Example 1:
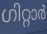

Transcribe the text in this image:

ഗിറ്റാർ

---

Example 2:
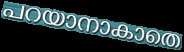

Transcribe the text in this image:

പറയാനാകാതെ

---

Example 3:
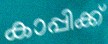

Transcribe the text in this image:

കാപ്പിക്ക്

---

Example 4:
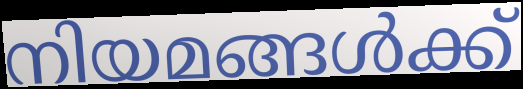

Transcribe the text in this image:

നിയമങ്ങൾക്ക്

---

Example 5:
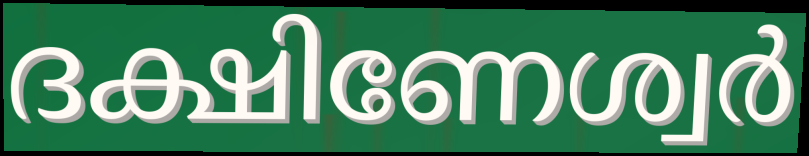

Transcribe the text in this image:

ദക്ഷിണേശ്വർ